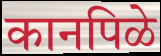
कानपिळे